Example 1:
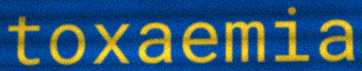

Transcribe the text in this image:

toxaemia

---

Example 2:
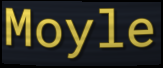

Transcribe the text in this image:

Moyle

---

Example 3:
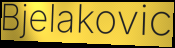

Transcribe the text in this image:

Bjelakovic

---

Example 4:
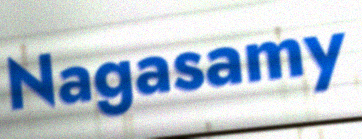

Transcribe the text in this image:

Nagasamy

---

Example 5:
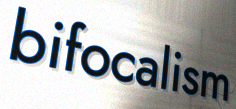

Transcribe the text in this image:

bifocalism